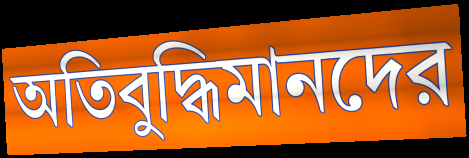
অতিবুদ্ধিমানদের